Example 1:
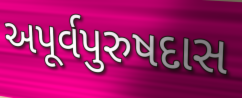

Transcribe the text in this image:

અપૂર્વપુરુષદાસ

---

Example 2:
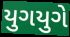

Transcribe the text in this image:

યુગયુગે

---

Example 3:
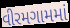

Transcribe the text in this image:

વીરમગામમાં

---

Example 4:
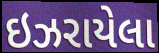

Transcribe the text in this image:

ઇઝરાયેલા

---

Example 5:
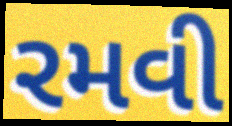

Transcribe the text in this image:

રમવી